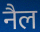
नैल